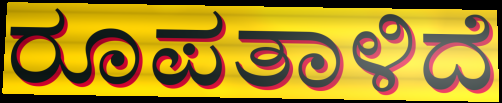
ರೂಪತಾಳಿದೆ